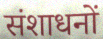
संशाधनों